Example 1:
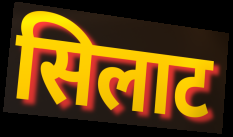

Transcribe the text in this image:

सिलाट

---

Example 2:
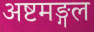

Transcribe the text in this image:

अष्टमङ्गल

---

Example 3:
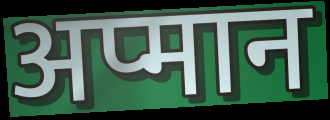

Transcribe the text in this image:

अप्मान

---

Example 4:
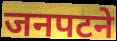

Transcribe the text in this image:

जनपटने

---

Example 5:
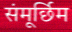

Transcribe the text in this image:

संमूर्छिम